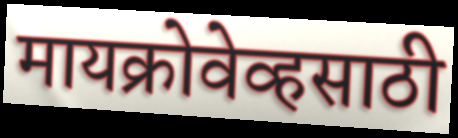
मायक्रोवेव्हसाठी